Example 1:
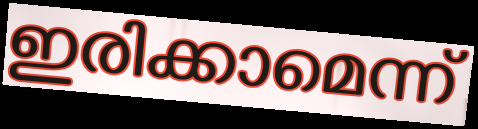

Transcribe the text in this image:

ഇരിക്കാമെന്ന്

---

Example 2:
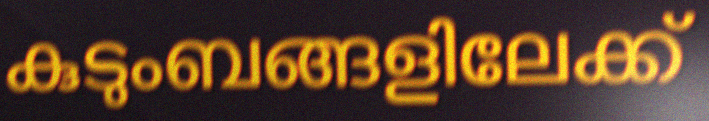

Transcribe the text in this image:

കുടുംബങ്ങളിലേക്ക്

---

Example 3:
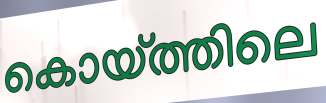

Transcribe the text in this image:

കൊയ്ത്തിലെ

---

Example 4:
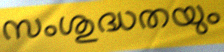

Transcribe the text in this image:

സംശുദ്ധതയും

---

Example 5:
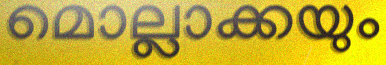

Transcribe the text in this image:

മൊല്ലാക്കയും